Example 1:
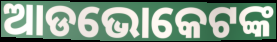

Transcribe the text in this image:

ଆଡଭୋକେଟଙ୍କ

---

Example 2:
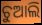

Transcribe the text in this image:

ଚୁଆଲି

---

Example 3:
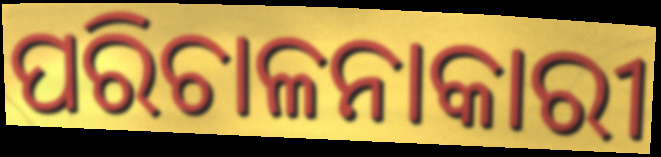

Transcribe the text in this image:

ପରିଚାଳନାକାରୀ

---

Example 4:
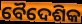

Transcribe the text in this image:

ବୈଦେଶିକ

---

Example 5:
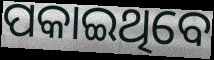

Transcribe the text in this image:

ପକାଇଥିବେ